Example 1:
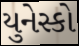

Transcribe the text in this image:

યુનેસ્કો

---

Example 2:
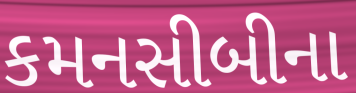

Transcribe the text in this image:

કમનસીબીના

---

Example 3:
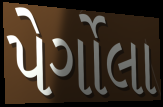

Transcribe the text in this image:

પેર્ગોલા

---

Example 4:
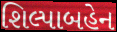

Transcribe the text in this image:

શિલ્પાબહેન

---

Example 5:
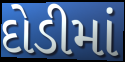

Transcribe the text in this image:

દોડીમાં